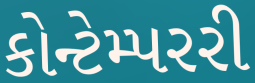
કોન્ટેમ્પરરી